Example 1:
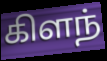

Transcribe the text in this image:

கிளந்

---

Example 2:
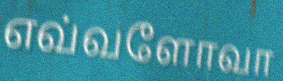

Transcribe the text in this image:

எவ்வளோவா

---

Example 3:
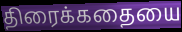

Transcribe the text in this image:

திரைக்கதையை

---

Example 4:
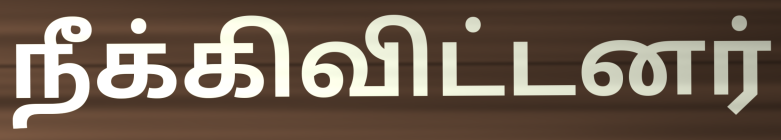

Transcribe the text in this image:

நீக்கிவிட்டனர்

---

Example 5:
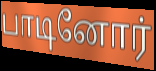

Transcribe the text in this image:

பாடினோர்